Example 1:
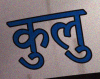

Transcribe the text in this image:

कुलु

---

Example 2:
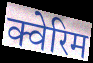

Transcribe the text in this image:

क्वेरिम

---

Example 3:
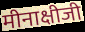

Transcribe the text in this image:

मीनाक्षीजी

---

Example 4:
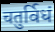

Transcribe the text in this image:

चतुर्विधं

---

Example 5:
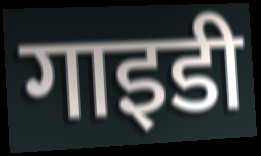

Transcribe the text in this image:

गाइडी